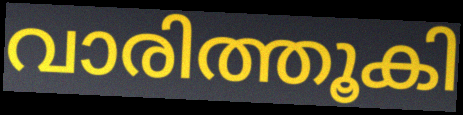
വാരിത്തൂകി